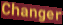
Changer